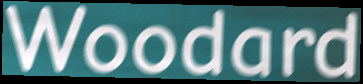
Woodard